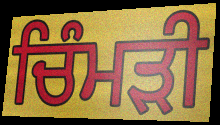
ਚਿੰਮੜੀ